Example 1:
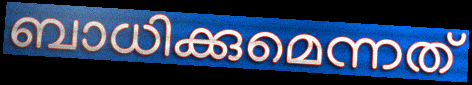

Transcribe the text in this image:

ബാധിക്കുമെന്നത്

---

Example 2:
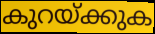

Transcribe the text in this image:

കുറയ്ക്കുക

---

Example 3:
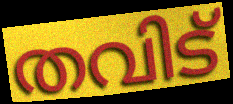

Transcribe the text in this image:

തവിട്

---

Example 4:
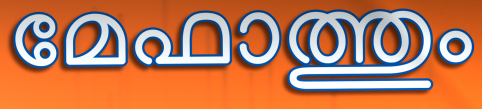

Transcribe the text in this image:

മേഫാത്തും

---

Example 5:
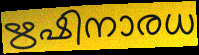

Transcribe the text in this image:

ഋഷിനാരധ